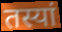
तस्यां